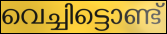
വെച്ചിട്ടൊണ്ട്